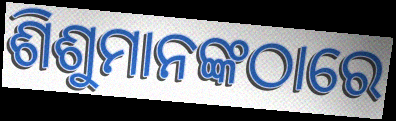
ଶିଶୁମାନଙ୍କଠାରେ